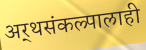
अर्थसंकल्पालाही